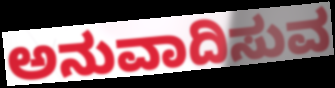
ಅನುವಾದಿಸುವ